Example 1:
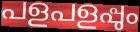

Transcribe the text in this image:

പളപളപ്പും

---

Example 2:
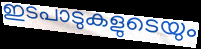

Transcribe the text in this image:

ഇടപാടുകളുടെയും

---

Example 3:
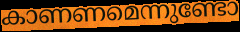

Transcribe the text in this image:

കാണണമെന്നുണ്ടോ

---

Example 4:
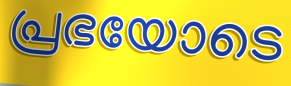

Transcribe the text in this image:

പ്രഭയോടെ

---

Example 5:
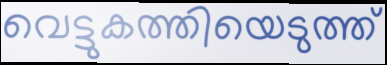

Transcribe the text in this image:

വെട്ടുകത്തിയെടുത്ത്